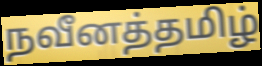
நவீனத்தமிழ்